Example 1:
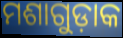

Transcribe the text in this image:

ମଶାଗୁଡ଼ାକ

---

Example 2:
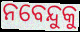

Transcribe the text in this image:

ନବେନ୍ଦୁକୁ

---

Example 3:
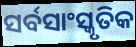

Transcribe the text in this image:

ସର୍ବସାଂସ୍କୃତିକ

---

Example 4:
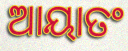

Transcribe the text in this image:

ଆୟାତଂ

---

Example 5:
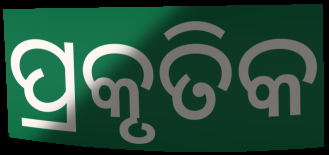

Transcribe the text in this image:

ପ୍ରକୃତିକ